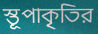
স্তূপাকৃতির